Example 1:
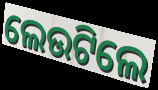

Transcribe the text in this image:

ଲେଉଟିଲେ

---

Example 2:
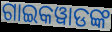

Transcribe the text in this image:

ଗାଇକୱାଡଙ୍କ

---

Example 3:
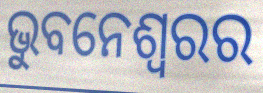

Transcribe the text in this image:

ଭୁବନେଶ୍ଵରର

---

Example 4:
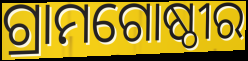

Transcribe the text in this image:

ଗ୍ରାମଗୋଷ୍ଠୀର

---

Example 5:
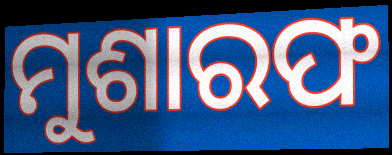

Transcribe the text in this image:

ମୁଶାରଫ